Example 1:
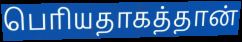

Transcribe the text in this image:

பெரியதாகத்தான்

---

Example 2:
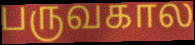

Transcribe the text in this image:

பருவகால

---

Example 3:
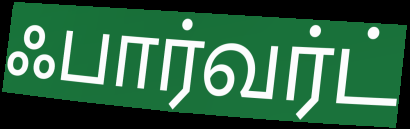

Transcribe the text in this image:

ஃபார்வர்ட்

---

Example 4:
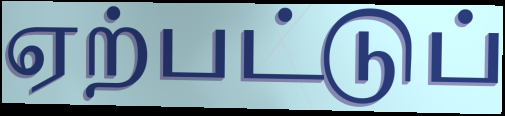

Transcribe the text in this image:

ஏற்பட்டுப்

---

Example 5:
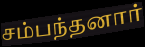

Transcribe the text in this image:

சம்பந்தனார்